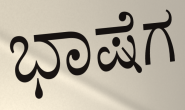
ಭಾಷೆಗ